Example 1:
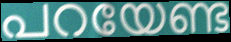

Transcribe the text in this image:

പറയേണ്ട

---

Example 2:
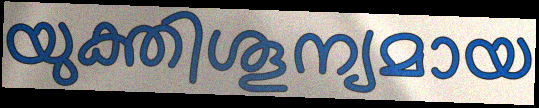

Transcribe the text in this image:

യുക്തിശൂന്യമായ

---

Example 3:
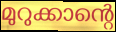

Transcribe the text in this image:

മുറുക്കാന്റെ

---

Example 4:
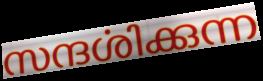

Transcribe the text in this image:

സന്ദൎശിക്കുന്ന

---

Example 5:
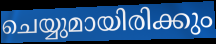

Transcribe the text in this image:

ചെയ്യുമായിരിക്കും